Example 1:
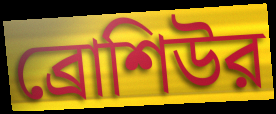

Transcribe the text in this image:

ব্রোশিউর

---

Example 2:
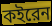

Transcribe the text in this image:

কইরেন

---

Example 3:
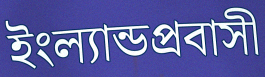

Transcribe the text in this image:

ইংল্যান্ডপ্রবাসী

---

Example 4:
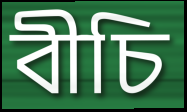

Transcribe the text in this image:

বীচি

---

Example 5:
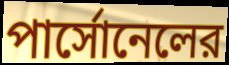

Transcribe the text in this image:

পার্সোনেলের